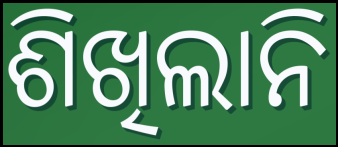
ଶିଖିଲାନି